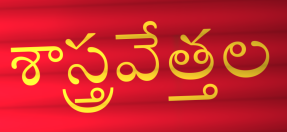
శాస్త్రవేత్తల